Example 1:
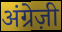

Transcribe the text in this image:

अंग्रेज़ी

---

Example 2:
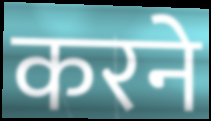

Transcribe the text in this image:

करने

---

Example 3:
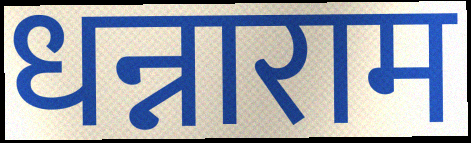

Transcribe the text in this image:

धन्नाराम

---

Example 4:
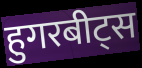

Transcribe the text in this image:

हुगरबीट्स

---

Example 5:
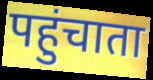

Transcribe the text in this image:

पहुंचाता